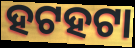
ହଟହଟା